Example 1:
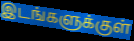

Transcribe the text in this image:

இடங்களுக்குள்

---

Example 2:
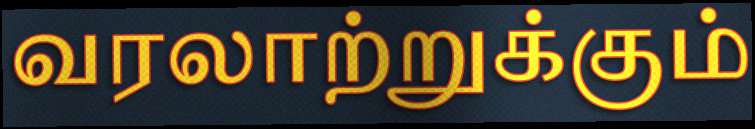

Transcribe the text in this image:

வரலாற்றுக்கும்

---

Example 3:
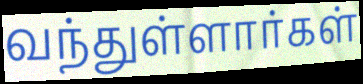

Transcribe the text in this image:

வந்துள்ளார்கள்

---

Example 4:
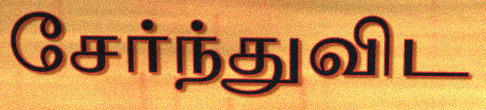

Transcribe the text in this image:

சேர்ந்துவிட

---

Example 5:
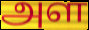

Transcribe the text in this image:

அள